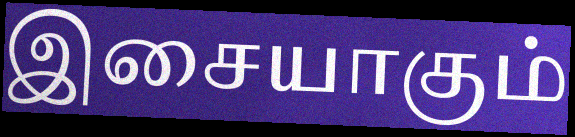
இசையாகும்